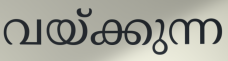
വയ്ക്കുന്ന